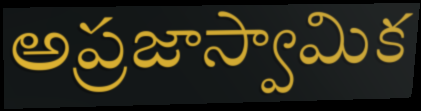
అప్రజాస్వామిక